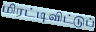
மிரட்டிவிட்டுப்